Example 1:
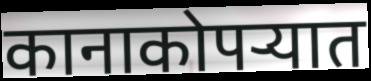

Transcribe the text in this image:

कानाकोपऱ्यात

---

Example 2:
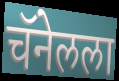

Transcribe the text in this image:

चॅनेलला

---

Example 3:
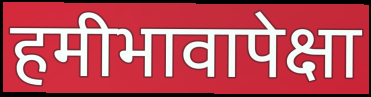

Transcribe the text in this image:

हमीभावापेक्षा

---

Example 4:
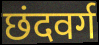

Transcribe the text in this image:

छंदवर्ग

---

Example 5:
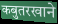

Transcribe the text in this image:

कबुतरखाने